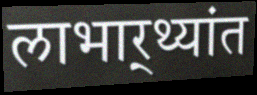
लाभार्थ्यांत